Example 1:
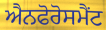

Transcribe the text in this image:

ਐਨਫੋਰੋਸਮੈਂਟ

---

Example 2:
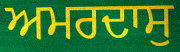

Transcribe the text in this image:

ਅਮਰਦਾਸੁ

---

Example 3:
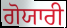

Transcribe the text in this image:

ਗੋਯਾਰੀ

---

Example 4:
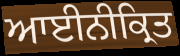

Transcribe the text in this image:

ਆਈਨੀਕ੍ਰਿਤ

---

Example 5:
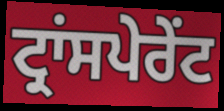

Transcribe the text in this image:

ਟ੍ਰਾਂਸਪੇਰੇਂਟ